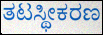
ತಟಸ್ಥೀಕರಣ